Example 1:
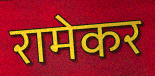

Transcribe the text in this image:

रामेकर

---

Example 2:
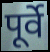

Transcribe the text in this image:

पूर्वे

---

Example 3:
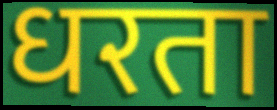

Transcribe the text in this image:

धरता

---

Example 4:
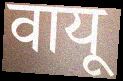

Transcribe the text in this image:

वायू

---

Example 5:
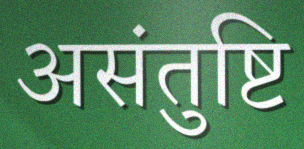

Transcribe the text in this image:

असंतुष्टि